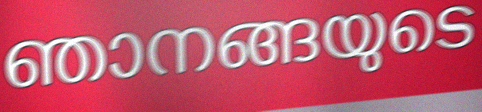
ഞാനങ്ങയുടെ